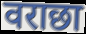
वराछा